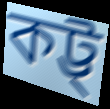
কট্ট্